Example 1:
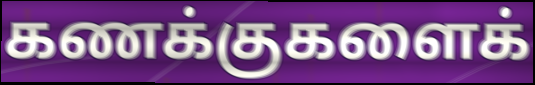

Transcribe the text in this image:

கணக்குகளைக்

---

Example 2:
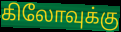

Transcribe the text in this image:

கிலோவுக்கு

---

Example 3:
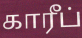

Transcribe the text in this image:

காரீப்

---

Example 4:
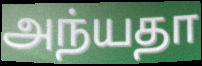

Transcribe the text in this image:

அந்யதா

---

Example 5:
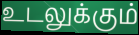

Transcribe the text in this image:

உடலுக்கும்